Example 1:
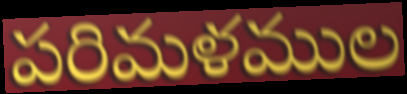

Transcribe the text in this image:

పరిమళముల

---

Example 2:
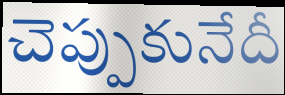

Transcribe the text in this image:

చెప్పుకునేదీ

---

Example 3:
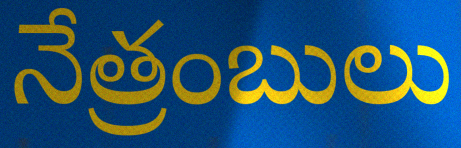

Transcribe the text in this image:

నేత్రంబులు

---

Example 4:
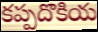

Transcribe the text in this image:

కప్పదొకియ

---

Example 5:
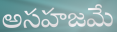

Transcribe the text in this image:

అసహజమే